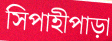
সিপাহীপাড়া